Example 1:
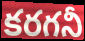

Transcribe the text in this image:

కరగనీ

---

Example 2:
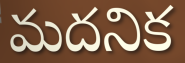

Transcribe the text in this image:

మదనిక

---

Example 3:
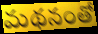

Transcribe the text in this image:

మథనంతో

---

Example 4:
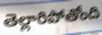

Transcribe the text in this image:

తెల్లారిపోతోంది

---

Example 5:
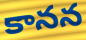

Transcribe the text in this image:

కానన